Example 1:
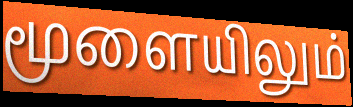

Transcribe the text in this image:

மூளையிலும்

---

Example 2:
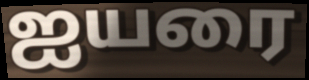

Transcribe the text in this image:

ஐயரை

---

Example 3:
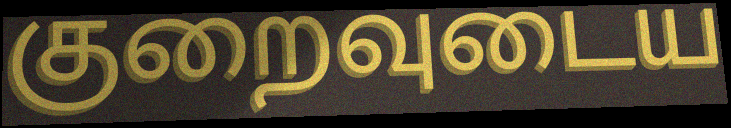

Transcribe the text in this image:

குறைவுடைய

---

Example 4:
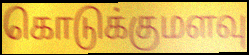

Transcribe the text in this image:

கொடுக்குமளவு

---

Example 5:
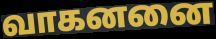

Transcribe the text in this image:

வாகனனை